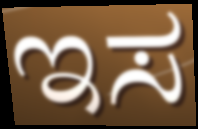
ಇಸ